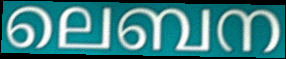
ലെബന